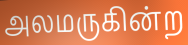
அலமருகின்ற